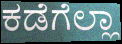
ಕಡೆಗೆಲ್ಲಾ